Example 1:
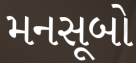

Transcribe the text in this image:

મનસૂબો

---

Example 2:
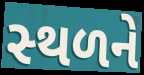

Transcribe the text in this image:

સ્‍થળને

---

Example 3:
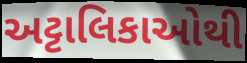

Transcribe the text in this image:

અટ્ટાલિકાઓથી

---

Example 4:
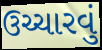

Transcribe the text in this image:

ઉચ્ચારવું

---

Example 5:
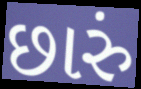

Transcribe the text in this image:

છારું